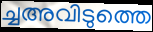
ച്ചഅവിടുത്തെ